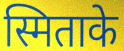
स्मिताके